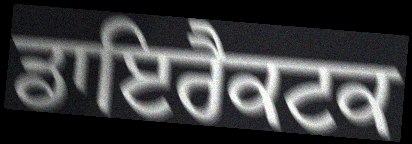
ਡਾਇਰੈਕਟਕ